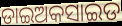
ଡାଇଅକସାଇଡ